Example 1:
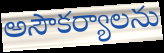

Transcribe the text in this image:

అసౌకర్యాలను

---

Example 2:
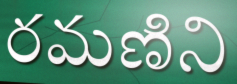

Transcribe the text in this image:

రమణిని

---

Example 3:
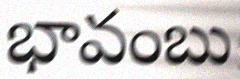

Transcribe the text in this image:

భావంబు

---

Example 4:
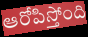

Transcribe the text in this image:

ఆరోపిస్తోంది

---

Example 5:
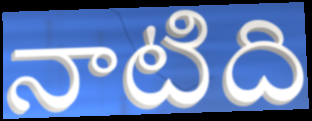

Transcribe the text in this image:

నాటిది